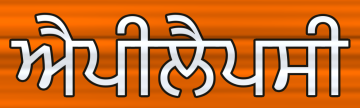
ਐਪੀਲੈਪਸੀ